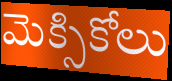
మెక్సికోలు